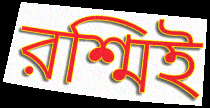
রশ্মিই